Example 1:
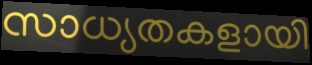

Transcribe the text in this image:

സാധ്യതകളായി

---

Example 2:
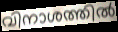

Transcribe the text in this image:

വിനാശത്തിൽ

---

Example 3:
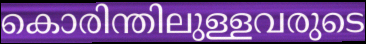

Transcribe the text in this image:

കൊരിന്തിലുള്ളവരുടെ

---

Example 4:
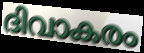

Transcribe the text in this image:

ദിവാകരം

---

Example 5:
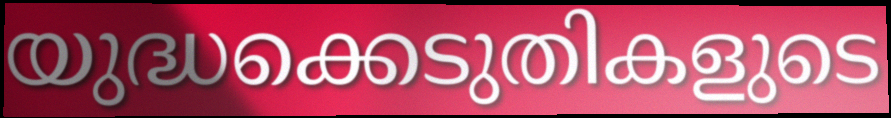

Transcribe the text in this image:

യുദ്ധക്കെടുതികളുടെ